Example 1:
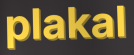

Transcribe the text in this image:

plakal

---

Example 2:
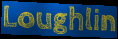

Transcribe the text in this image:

Loughlin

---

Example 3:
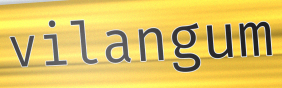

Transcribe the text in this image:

vilangum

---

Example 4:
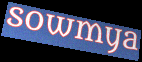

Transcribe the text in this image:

sowmya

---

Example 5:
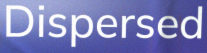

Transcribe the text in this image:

Dispersed